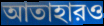
আতাহারও